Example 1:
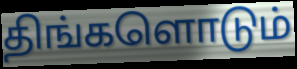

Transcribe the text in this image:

திங்களொடும்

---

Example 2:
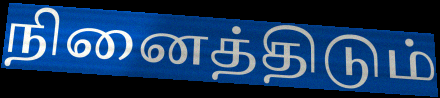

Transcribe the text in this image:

நினைத்திடும்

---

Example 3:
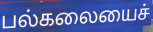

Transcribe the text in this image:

பல்கலையைச்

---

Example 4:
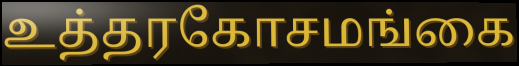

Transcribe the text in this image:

உத்தரகோசமங்கை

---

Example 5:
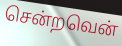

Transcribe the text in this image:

சென்றவென்